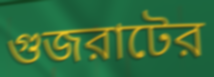
গুজরাটের